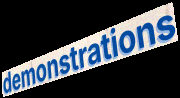
demonstrations